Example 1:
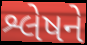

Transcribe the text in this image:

શ્લેષને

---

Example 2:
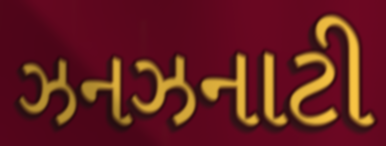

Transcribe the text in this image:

ઝનઝનાટી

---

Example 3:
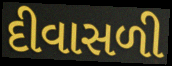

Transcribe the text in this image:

દીવાસળી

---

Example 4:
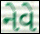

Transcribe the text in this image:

નેવે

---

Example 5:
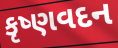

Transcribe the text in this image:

કૃષ્ણવદન